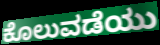
ಕೊಲುವಡೆಯು